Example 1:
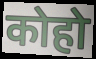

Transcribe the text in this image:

कोहो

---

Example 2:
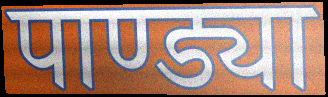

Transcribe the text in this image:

पाण्ड्या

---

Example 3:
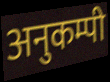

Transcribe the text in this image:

अनुकम्पी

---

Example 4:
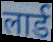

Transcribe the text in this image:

लार्ड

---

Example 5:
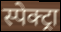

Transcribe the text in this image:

स्पेक्ट्रा